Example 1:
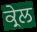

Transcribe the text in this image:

ਕ੍ਰੇਲ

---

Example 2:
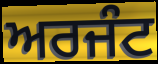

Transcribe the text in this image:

ਅਰਜੰਟ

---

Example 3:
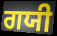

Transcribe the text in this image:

ਗਯੀ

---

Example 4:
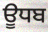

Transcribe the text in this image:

ਊਧਬ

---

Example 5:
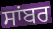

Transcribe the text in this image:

ਸਾਂਬਰ